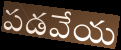
పడవేయ